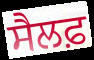
ਸੈਲਫ਼